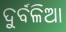
ଦୁର୍ବଳିଆ